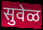
सुवेळ